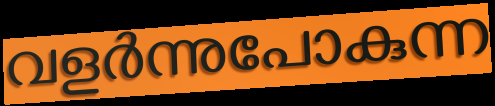
വളർന്നുപോകുന്ന